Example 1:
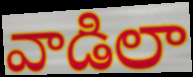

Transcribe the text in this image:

వాడిలా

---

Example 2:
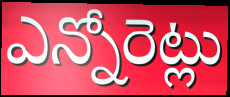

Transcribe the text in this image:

ఎన్నోరెట్లు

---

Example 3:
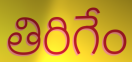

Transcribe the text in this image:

తిరిగేం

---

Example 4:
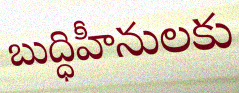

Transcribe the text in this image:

బుద్ధిహీనులకు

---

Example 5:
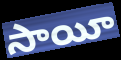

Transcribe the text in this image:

సాయీ